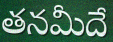
తనమీదే